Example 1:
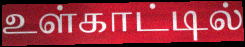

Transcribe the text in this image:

உள்காட்டில்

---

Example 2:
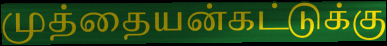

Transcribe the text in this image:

முத்தையன்கட்டுக்கு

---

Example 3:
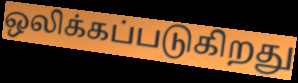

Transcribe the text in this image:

ஒலிக்கப்படுகிறது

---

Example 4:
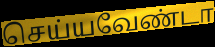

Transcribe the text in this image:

செய்யவேண்டா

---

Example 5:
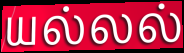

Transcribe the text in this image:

யல்லல்